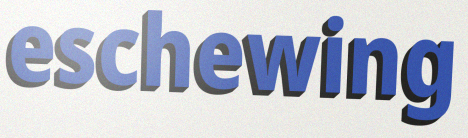
eschewing